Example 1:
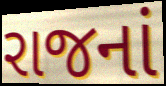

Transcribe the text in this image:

રાજનાં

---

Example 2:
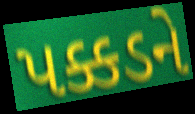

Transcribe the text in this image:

પક્કડને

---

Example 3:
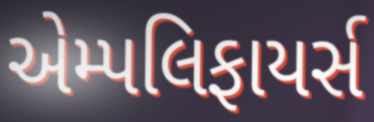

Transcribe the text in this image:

એમ્પલિફાયર્સ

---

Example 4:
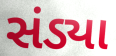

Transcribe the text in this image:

સંડ્યા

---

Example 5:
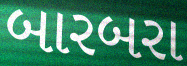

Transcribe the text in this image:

બારબરા